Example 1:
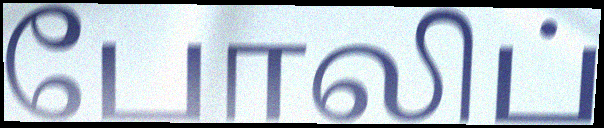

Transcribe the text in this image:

போலிப்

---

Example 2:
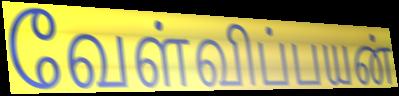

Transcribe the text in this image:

வேள்விப்பயன்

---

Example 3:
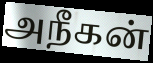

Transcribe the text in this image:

அநீகன்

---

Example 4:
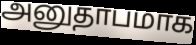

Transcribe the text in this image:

அனுதாபமாக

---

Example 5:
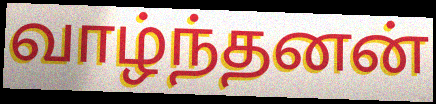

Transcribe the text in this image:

வாழ்ந்தனன்